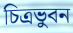
চিত্রভুবন